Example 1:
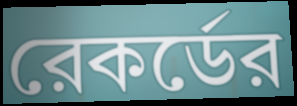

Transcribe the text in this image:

রেকর্ডের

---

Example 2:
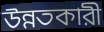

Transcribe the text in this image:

উন্নতকারী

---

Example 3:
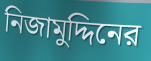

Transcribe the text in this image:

নিজামুদ্দিনের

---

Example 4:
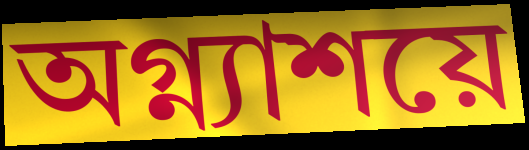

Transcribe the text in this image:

অগ্ন্যাশয়ে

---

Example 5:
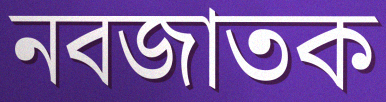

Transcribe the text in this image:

নবজাতক